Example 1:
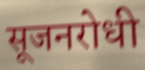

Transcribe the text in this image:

सूजनरोधी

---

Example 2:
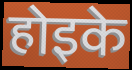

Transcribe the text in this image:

होइके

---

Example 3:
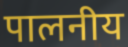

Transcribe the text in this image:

पालनीय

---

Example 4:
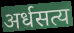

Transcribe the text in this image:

अर्धसत्य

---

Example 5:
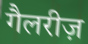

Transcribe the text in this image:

गैलरीज़